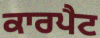
ਕਾਰਪੈਟ